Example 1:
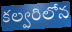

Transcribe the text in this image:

కల్వరిలోన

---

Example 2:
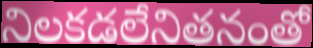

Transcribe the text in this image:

నిలకడలేనితనంతో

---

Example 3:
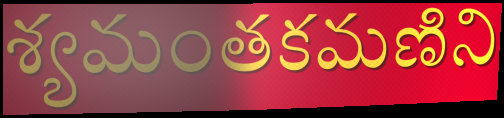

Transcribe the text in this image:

శ్యమంతకమణిని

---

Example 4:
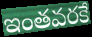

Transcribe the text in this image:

ఇంతవరకే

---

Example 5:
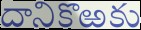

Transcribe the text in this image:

దానికొఱకు